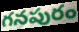
గనపురం